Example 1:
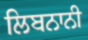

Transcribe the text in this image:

ਲਿਬਨਾਨੀ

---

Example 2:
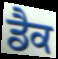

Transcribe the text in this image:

ਡੈਕ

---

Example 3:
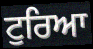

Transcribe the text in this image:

ਟੁਰਿਆ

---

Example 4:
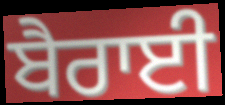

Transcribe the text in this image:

ਬੈਰਾਈ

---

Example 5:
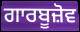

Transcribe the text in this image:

ਗਾਰਬੂਜ਼ੋਵ